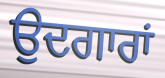
ਉਦਗਾਰਾਂ